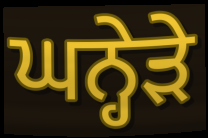
ਘਨ੍ਹੇੜੇ